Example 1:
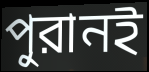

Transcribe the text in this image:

পুরানই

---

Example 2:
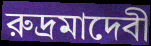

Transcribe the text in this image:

রুদ্রমাদেবী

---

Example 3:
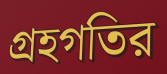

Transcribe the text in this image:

গ্রহগতির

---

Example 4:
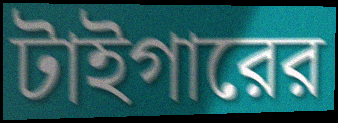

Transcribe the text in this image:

টাইগারের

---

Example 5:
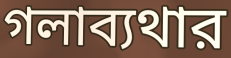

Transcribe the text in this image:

গলাব্যথার